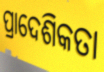
ପ୍ରାଦେଶିକତା